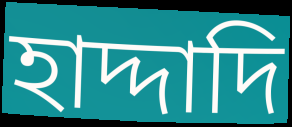
হাদ্দাদি